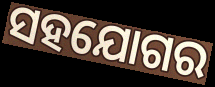
ସହଯୋଗର